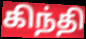
கிந்தி